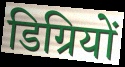
डिग्रियों